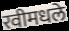
रवीमधले